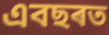
এবছৰত